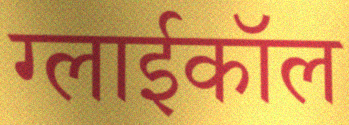
ग्लाईकॉल